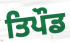
ਤਿਪੌਡ